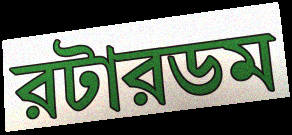
রটারডম